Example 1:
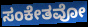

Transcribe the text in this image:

ಸಂಕೇತವೋ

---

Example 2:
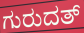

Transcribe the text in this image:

ಗುರುದತ್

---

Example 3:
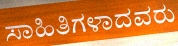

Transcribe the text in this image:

ಸಾಹಿತಿಗಳಾದವರು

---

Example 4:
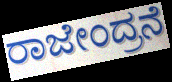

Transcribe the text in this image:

ರಾಜೇಂದ್ರನೆ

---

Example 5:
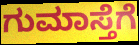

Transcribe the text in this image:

ಗುಮಾಸ್ತೆಗೆ